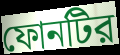
ফোনটির